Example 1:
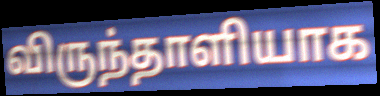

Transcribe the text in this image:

விருந்தாளியாக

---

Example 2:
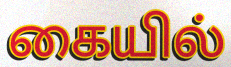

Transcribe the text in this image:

கையில்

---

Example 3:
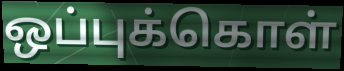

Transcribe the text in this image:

ஒப்புக்கொள்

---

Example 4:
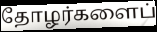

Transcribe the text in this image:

தோழர்களைப்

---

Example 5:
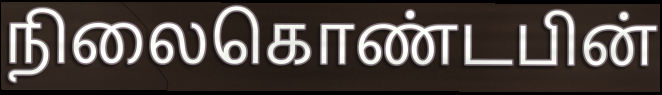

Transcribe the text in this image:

நிலைகொண்டபின்